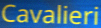
Cavalieri